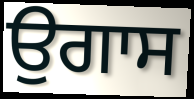
ਉਗਾਸ